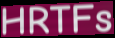
HRTFs